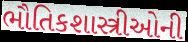
ભૌતિકશાસ્ત્રીઓની